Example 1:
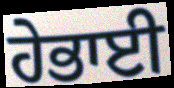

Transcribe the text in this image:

ਹੇਭਾਈ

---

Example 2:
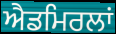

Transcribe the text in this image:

ਐਡਮਿਰਲਾਂ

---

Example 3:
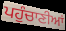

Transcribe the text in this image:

ਪਹੁੰਚਾਣੀਆਂ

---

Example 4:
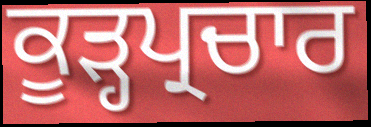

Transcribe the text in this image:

ਕੂੜ੍ਹਪ੍ਰਚਾਰ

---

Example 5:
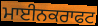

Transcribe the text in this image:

ਮਾਈਨਕਰਾਫਟ